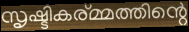
സൃഷ്ടികര്മ്മത്തിന്റെ